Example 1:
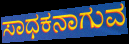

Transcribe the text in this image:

ಸಾಧಕನಾಗುವ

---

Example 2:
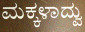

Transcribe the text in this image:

ಮಕ್ಕಳಾದ್ವು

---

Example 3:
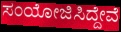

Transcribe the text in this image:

ಸಂಯೋಜಿಸಿದ್ದೇವೆ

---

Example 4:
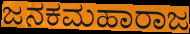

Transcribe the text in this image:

ಜನಕಮಹಾರಾಜ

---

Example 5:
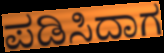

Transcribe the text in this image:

ಪಡಿಸಿದಾಗ